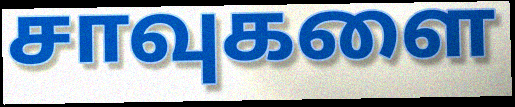
சாவுகளை